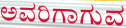
ಅವರಿಗಾಗುವ